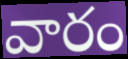
వారం